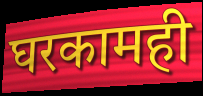
घरकामही